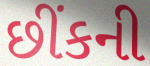
છીંકની